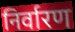
निर्वारण